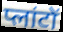
प्लांटों